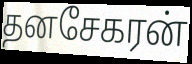
தனசேகரன்